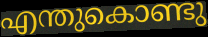
എന്തുകൊണ്ടു